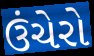
ઉંચેરો